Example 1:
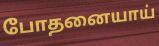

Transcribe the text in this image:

போதனையாய்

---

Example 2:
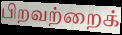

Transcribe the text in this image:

பிறவற்றைக்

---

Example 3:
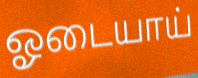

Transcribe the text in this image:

ஓடையாய்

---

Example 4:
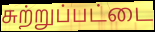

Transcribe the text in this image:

சுற்றுப்பட்டை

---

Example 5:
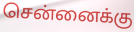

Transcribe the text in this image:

சென்னைக்கு